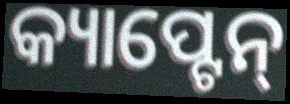
କ୍ୟାପ୍ଟେନ୍